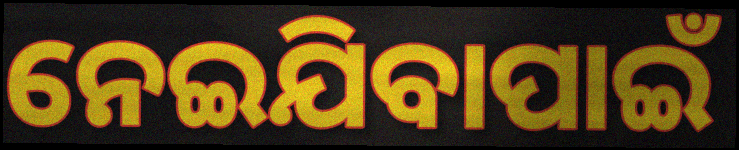
ନେଇଯିବାପାଇଁ